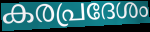
കരപ്രദേശം